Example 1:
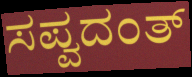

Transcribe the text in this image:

ಸಪ್ವದಂತ್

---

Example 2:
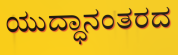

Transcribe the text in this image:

ಯುದ್ಧಾನಂತರದ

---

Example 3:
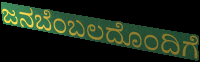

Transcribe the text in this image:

ಜನಬೆಂಬಲದೊಂದಿಗೆ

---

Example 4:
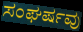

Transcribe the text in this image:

ಸಂಘರ್ಷವು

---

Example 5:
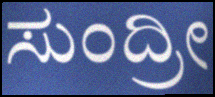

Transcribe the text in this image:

ಸುಂದ್ರೀ